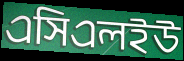
এসিএলইউ